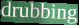
drubbing